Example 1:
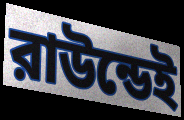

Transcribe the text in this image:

রাউন্ডেই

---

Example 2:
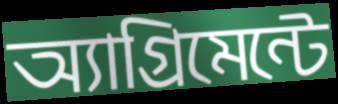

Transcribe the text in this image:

অ্যাগ্রিমেন্টে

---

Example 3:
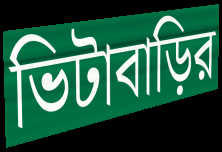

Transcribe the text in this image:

ভিটাবাড়ির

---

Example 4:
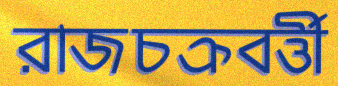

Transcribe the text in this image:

রাজচক্রবর্ত্তী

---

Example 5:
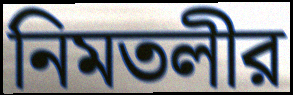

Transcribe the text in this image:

নিমতলীর